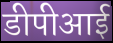
डीपीआई